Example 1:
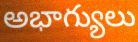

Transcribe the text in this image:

అభాగ్యులు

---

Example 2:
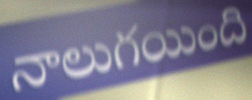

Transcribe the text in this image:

నాలుగయింది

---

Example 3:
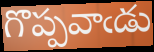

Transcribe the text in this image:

గొప్పవాఁడు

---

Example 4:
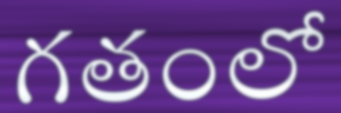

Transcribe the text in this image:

గతంలో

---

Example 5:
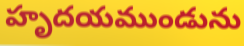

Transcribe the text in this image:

హృదయముండును